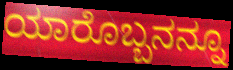
ಯಾರೊಬ್ಬನನ್ನೂ